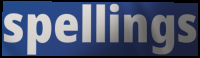
spellings